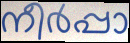
നീർപ്പാ